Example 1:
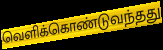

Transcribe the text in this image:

வெளிக்கொண்டுவந்தது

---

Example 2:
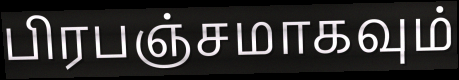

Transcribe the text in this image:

பிரபஞ்சமாகவும்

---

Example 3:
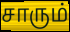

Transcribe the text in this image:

சாரும்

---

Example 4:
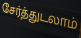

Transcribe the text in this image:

சேர்த்துடலாம்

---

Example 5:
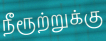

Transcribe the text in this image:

நீரூற்றுக்கு